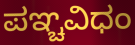
ಪಞ್ಚವಿಧಂ